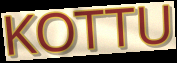
KOTTU